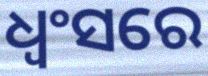
ଧ୍ୱଂସରେ